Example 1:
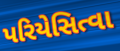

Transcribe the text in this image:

પરિયેસિત્વા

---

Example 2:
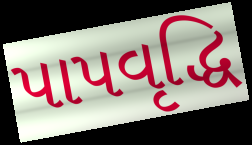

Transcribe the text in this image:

પાપવૃદ્ધિ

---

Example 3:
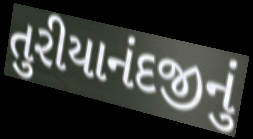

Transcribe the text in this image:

તુરીયાનંદજીનું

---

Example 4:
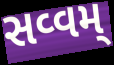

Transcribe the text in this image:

સવ્વમ્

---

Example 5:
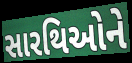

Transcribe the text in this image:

સારથિઓને